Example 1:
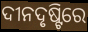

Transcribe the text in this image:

ଦୀନଦୃଷ୍ଟିରେ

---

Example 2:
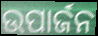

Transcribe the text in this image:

ଉପାର୍ଜନ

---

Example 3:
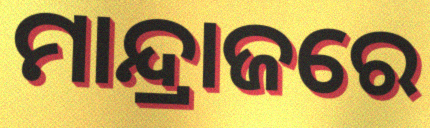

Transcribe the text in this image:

ମାନ୍ଦ୍ରାଜରେ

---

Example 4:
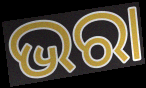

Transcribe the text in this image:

ଭରା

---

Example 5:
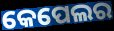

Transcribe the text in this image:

କେପେଲର